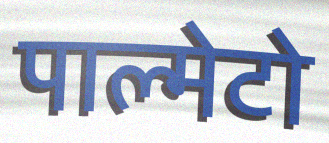
पाल्मेटो